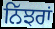
ਨਿੱਝਰਾਂ